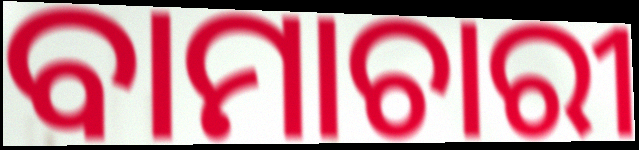
ବାମାଚାରୀ